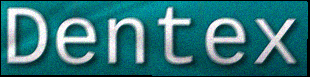
Dentex